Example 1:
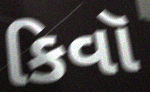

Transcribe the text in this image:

કિવૉ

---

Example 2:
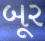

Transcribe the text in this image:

બૂર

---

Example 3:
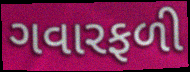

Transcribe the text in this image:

ગવારફળી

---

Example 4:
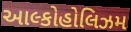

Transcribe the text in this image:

આલ્કોહોલિઝમ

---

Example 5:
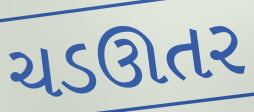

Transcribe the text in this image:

ચડઊતર